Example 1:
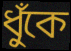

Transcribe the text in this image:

ধুঁকে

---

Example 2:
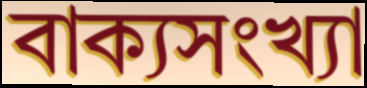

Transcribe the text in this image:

বাক্যসংখ্যা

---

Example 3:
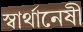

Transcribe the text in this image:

স্বার্থানেষী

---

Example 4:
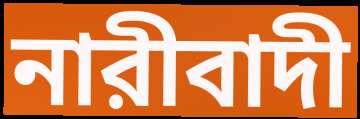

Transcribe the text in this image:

নারীবাদী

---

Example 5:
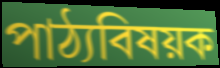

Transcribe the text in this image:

পাঠ্যবিষয়ক